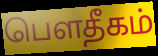
பௌதீகம்